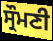
ਸ੍ਰੌਮਣੀ